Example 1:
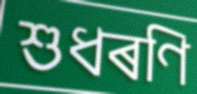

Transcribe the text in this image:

শুধৰণি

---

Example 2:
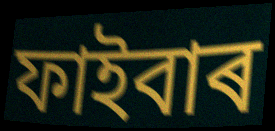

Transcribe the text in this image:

ফাইবাৰ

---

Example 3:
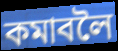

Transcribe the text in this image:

কমাবলৈ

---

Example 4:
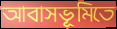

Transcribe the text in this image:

আবাসভূমিতে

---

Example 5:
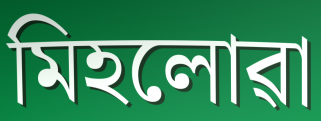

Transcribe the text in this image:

মিহলোৱা